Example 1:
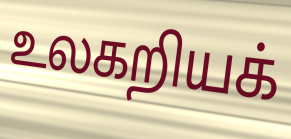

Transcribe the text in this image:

உலகறியக்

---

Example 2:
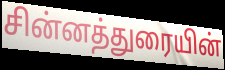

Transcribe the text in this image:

சின்னத்துரையின்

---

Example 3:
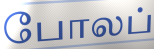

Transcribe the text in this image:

போலப்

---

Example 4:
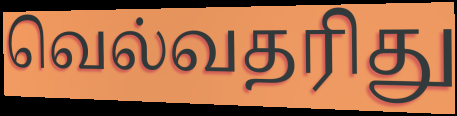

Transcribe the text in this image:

வெல்வதரிது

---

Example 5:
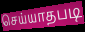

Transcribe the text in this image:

செய்யாதபடி